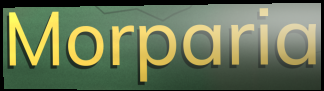
Morparia